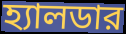
হ্যালডার